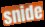
snide